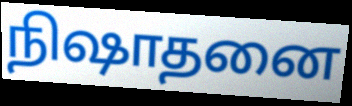
நிஷாதனை